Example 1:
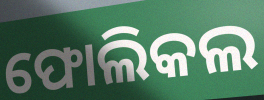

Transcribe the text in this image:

ଫୋଲିକଲ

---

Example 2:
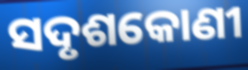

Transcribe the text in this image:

ସଦୃଶକୋଣୀ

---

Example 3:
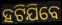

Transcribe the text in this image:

ହଟିଯିବେ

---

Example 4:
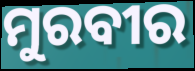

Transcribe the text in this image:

ମୁରବୀର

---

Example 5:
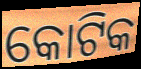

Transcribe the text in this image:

କୋଟିକ